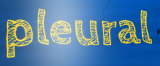
pleural